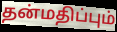
தன்மதிப்பும்